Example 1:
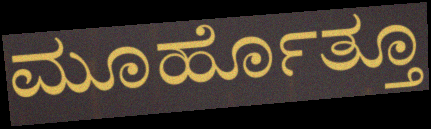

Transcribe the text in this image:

ಮೂರ್ಹೊತ್ತೂ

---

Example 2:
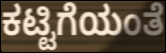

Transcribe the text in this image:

ಕಟ್ಟಿಗೆಯಂತೆ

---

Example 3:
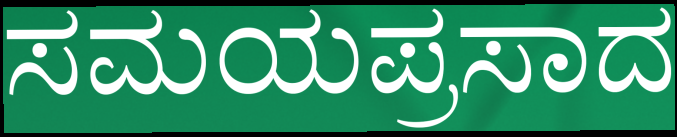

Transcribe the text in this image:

ಸಮಯಪ್ರಸಾದ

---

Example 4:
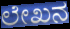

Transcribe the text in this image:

ಲೇಖನ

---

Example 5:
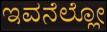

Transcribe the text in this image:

ಇವನೆಲ್ಲೋ